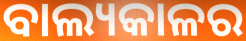
ବାଲ୍ୟକାଳର